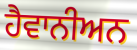
ਹੈਵਾਨੀਅਨ